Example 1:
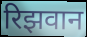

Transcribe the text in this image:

रिझवान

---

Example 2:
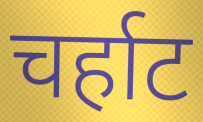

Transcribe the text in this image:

चर्हाट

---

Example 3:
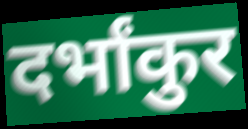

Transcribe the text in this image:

दर्भांकुर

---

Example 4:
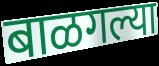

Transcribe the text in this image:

बाळगल्या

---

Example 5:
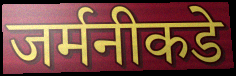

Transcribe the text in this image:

जर्मनीकडे